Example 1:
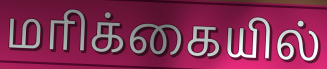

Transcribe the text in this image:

மரிக்கையில்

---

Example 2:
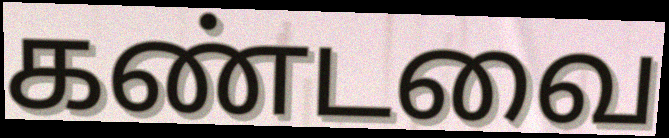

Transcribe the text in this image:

கண்டவை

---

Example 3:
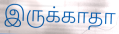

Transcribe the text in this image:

இருக்காதா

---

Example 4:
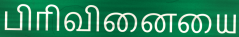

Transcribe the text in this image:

பிரிவினையை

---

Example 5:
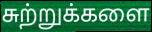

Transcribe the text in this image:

சுற்றுக்களை